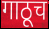
गाठूच